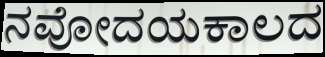
ನವೋದಯಕಾಲದ